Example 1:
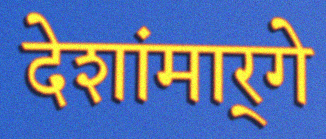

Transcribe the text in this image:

देशांमार्गे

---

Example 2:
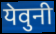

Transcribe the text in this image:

येवुनी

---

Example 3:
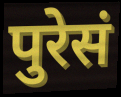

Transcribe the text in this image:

पुरेसं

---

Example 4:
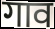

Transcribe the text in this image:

गाव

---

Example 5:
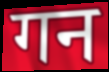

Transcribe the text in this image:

गन